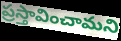
ప్రస్తావించామని